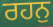
ਰਹਨੁ